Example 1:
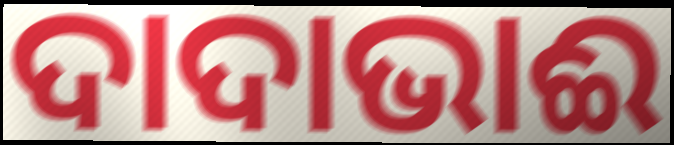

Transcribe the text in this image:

ଦାଦାଭାଈ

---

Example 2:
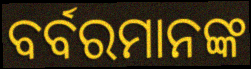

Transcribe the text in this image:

ବର୍ବରମାନଙ୍କ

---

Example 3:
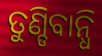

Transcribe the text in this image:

ତୁଣ୍ଡିବାନ୍ଧି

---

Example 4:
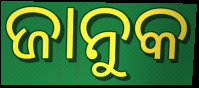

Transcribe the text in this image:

ଜାନୁକ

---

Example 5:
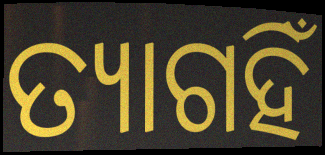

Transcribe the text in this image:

ତ୍ୟାଗହିଁ